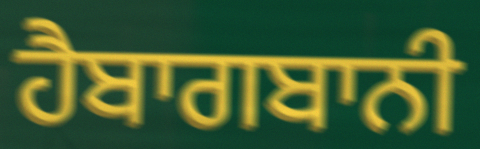
ਹੈਬਾਗਬਾਨੀ